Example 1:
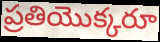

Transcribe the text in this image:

ప్రతియొక్కరూ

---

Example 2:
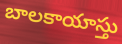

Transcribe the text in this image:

బాలకాయాస్తు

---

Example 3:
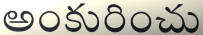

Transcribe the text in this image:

అంకురించు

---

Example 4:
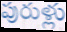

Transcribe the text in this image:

పురుళ్లు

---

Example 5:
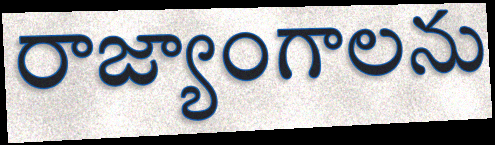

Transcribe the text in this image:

రాజ్యాంగాలను